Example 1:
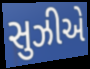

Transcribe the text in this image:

સુઝીએ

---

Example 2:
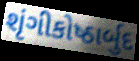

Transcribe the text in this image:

શૃંગીકોષ્ઠાર્બુદ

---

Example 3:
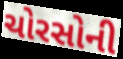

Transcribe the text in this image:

ચોરસોની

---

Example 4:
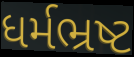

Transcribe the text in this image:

ધર્મભ્રષ્ટ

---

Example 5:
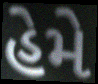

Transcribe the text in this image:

હેમે